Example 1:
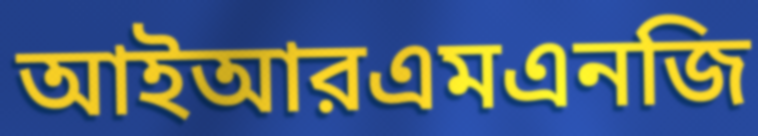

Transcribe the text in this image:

আইআরএমএনজি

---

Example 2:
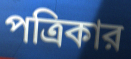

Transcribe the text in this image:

পত্রিকার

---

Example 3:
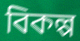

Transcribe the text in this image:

বিকল্প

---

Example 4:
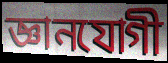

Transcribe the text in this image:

জ্ঞানযোগী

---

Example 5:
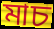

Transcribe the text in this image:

মাচ